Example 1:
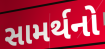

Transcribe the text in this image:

સામર્થનો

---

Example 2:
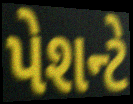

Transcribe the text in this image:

પેશન્ટે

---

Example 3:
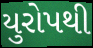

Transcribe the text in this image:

યુરોપથી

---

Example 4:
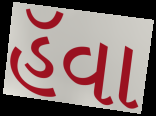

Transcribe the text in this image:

હૅવા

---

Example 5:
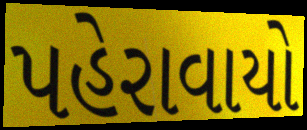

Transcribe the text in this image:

પહેરાવાયો